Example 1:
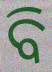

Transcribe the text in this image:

ବି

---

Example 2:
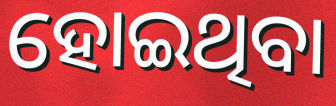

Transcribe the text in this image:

ହୋଇଥିବା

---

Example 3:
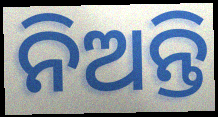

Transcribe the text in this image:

ନିଅନ୍ତି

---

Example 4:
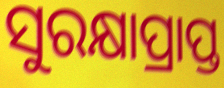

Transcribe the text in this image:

ସୁରକ୍ଷାପ୍ରାପ୍ତ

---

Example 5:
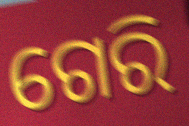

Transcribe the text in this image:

ଗେରି